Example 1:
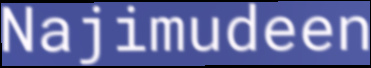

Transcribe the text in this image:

Najimudeen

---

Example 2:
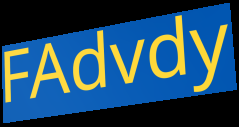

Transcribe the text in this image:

FAdvdy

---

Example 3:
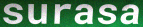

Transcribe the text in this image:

surasa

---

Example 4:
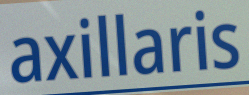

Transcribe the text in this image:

axillaris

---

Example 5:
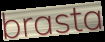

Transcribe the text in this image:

brasta